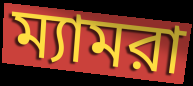
ম্যামরা